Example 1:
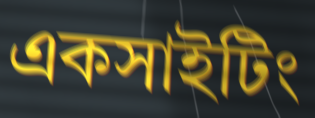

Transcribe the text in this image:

একসাইটিং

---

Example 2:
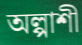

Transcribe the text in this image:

অল্পাশী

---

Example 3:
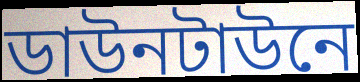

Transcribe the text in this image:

ডাউনটাউনে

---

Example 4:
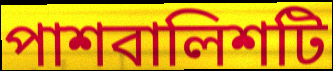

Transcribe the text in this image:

পাশবালিশটি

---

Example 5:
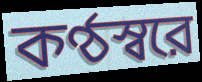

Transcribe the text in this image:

কণ্ঠস্বরে